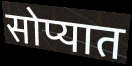
सोप्यात